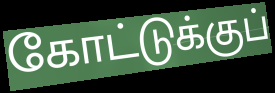
கோட்டுக்குப்